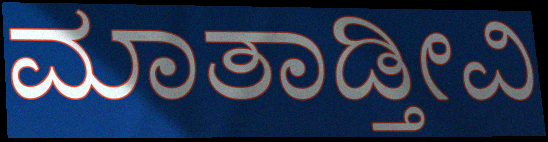
ಮಾತಾಡ್ತೀವಿ